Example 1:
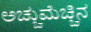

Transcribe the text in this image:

ಅಚ್ಚುಮೆಚ್ಚಿನ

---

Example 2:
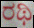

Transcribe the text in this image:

ರಥಿ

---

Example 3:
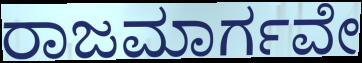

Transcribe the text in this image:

ರಾಜಮಾರ್ಗವೇ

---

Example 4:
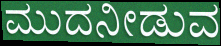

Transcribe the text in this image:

ಮುದನೀಡುವ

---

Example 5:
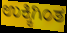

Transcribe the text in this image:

ಉಕ್ಕಿಗಿಂತ